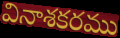
వినాశకరము